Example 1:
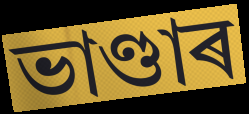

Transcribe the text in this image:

ভাণ্ডাৰ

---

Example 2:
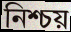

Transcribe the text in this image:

নিশ্চয়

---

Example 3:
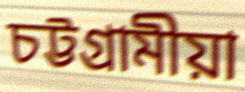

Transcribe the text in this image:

চট্টগ্ৰামীয়া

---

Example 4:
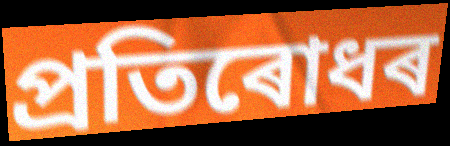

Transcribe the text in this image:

প্ৰতিৰোধৰ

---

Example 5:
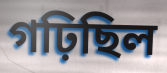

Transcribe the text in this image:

গঢ়িছিল